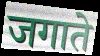
जगाते